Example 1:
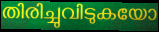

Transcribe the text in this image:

തിരിച്ചുവിടുകയോ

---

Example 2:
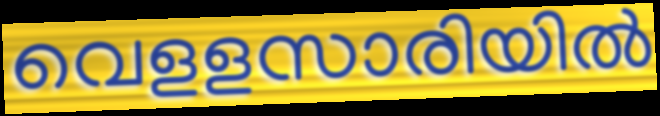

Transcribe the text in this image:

വെളളസാരിയിൽ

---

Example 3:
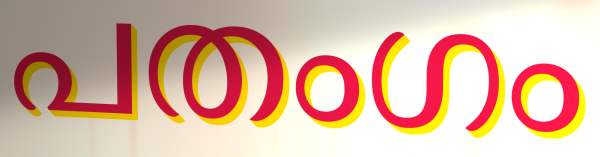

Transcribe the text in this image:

പതംഗം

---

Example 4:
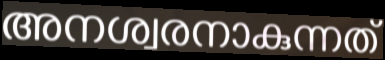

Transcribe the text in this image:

അനശ്വരനാകുന്നത്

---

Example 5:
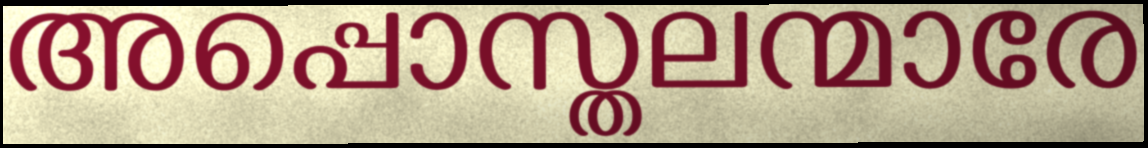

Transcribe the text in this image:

അപ്പൊസ്തലന്മാരേ